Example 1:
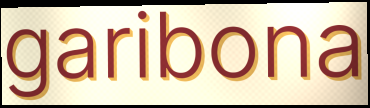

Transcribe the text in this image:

garibona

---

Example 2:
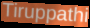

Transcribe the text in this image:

Tiruppathi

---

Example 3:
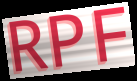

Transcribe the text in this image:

RPF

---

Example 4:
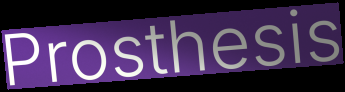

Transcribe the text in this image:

Prosthesis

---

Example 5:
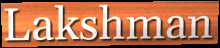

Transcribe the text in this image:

Lakshman